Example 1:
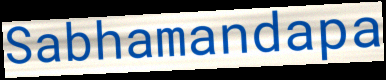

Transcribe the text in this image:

Sabhamandapa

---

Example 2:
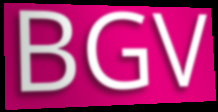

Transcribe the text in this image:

BGV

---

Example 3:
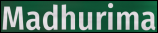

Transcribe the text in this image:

Madhurima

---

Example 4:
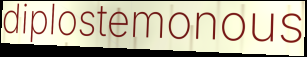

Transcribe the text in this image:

diplostemonous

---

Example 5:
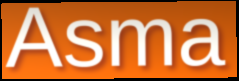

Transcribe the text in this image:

Asma